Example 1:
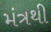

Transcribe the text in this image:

મંત્રથી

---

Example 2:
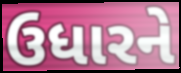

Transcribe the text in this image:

ઉધારને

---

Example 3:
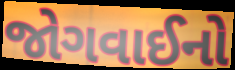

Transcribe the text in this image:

જોગવાઈનો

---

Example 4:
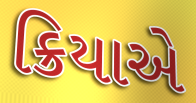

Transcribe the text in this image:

ક્રિયાએ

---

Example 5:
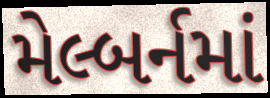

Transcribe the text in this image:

મેલ્બર્નમાં